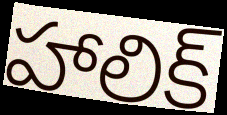
హాలిక్